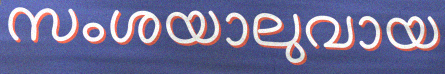
സംശയാലുവായ